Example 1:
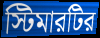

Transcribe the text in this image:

স্টিমারটির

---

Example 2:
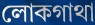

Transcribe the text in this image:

লোকগাথা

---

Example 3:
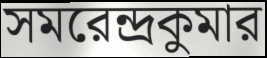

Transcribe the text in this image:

সমরেন্দ্রকুমার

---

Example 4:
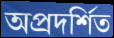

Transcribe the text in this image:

অপ্রদর্শিত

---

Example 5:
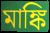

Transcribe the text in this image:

মাঙ্কি